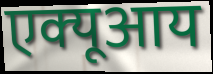
एक्यूआय